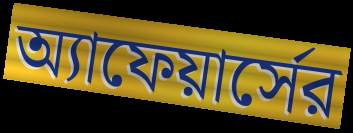
অ্যাফেয়ার্সের